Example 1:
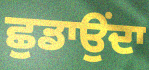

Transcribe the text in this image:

ਛੁਡਾਉਂਦਾ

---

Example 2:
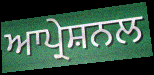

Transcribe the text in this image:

ਆਪ੍ਰੇਸ਼ਨਲ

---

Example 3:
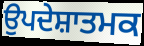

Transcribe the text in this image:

ਉਪਦੇਸ਼ਾਤਮਕ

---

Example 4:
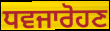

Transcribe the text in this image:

ਧਵਜਾਰੋਹਣ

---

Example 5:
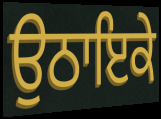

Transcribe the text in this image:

ਉਠਾਇਕੇ